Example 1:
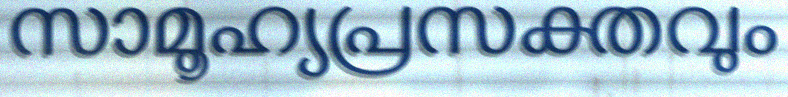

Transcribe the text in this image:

സാമൂഹ്യപ്രസക്തവും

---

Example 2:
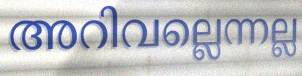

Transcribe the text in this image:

അറിവല്ലെന്നല്ല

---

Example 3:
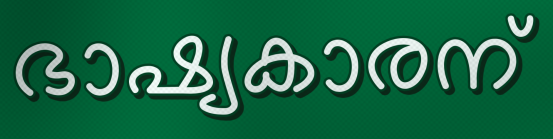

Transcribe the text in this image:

ഭാഷ്യകാരന്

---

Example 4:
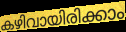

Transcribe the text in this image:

കഴിവായിരിക്കാം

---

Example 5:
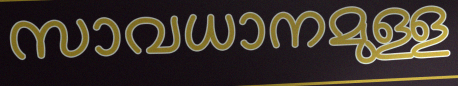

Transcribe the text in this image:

സാവധാനമുള്ള